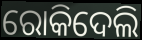
ରୋକିଦେଲି